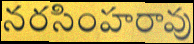
నరసింహరావు